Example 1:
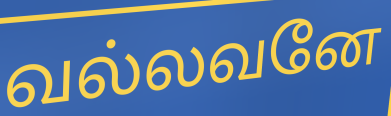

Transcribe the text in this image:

வல்லவனே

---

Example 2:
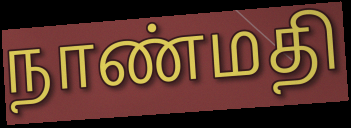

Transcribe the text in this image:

நாண்மதி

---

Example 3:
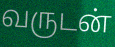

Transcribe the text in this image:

வருடன்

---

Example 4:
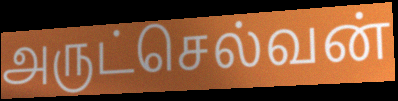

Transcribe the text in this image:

அருட்செல்வன்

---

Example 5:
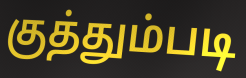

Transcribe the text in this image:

குத்தும்படி